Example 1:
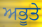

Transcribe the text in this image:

ਅਭੂਤੇ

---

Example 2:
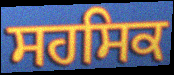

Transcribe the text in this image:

ਸਹਸਿਕ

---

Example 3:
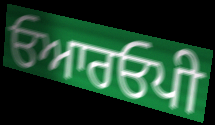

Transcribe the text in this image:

ਓਆਰਓਪੀ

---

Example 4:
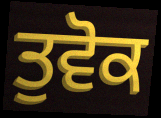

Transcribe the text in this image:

ਤੁਵੋਕ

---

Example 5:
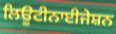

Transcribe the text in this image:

ਲਿਊਟੀਨਾਈਜੇਸ਼ਨ